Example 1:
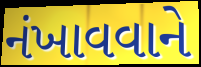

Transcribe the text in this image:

નંખાવવાને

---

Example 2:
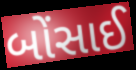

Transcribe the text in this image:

બોંસાઈ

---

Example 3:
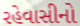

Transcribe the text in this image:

રહેવાસીનો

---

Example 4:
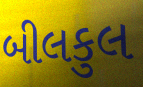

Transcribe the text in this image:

બીલકુલ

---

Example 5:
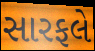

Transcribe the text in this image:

સારફલે